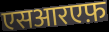
एसआरएफ़